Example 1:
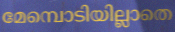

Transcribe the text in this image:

മേമ്പൊടിയില്ലാതെ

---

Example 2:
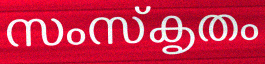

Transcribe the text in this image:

സംസ്‌കൃതം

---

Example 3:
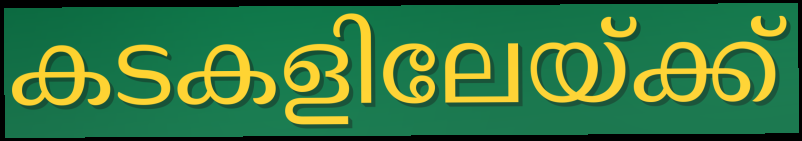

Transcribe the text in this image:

കടകളിലേയ്ക്ക്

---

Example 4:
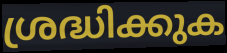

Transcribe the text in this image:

ശ്രദ്ധിക്കുക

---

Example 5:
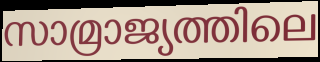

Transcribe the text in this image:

സാമ്രാജ്യത്തിലെ